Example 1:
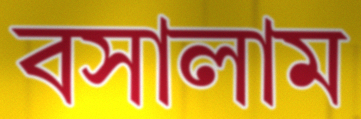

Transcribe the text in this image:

বসালাম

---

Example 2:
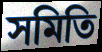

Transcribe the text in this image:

সমিতি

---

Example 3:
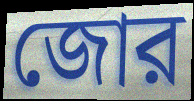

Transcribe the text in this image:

জোর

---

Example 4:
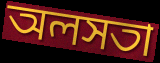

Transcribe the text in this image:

অলসতা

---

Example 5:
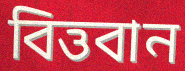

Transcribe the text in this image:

বিত্তবান